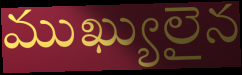
ముఖ్యులైన